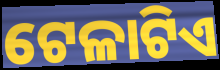
ଟେଳାଟିଏ